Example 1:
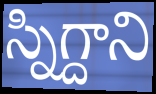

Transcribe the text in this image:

స్నిగ్దాని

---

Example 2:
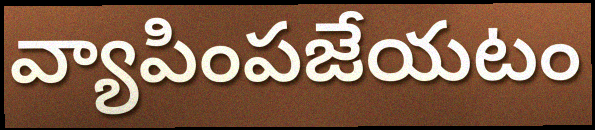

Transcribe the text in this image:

వ్యాపింపజేయటం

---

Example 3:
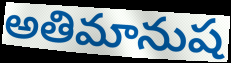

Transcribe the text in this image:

అతిమానుష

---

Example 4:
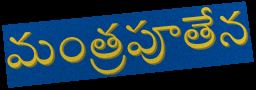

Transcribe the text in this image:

మంత్రపూతేన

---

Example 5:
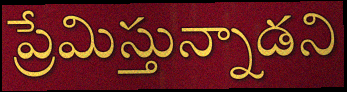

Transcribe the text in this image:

ప్రేమిస్తున్నాడని